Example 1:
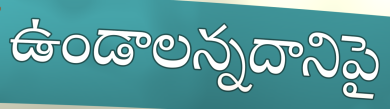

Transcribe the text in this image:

ఉండాలన్నదానిపై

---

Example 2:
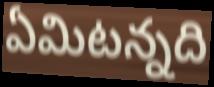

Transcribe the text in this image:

ఏమిటన్నది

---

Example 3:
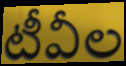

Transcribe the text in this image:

టీవీల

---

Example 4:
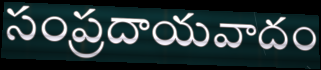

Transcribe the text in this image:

సంప్రదాయవాదం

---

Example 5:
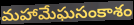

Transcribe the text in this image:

మహామేఘసంకాశం